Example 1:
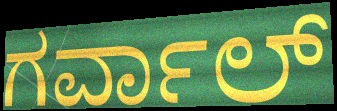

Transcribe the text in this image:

ಗರ್ವಾಲ್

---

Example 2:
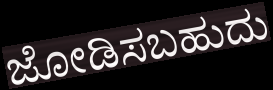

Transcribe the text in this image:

ಜೋಡಿಸಬಹುದು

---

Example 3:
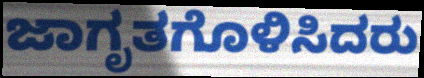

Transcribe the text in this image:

ಜಾಗೃತಗೊಳಿಸಿದರು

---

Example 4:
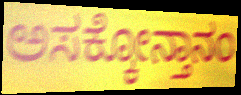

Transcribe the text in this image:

ಅಸಕ್ಕೋನ್ತಾನಂ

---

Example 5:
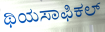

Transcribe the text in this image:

ಥಿಯಸಾಫಿಕಲ್